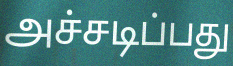
அச்சடிப்பது